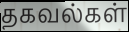
தகவல்கள்